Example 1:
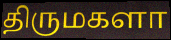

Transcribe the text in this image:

திருமகளா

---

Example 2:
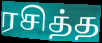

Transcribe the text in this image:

ரசித்த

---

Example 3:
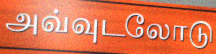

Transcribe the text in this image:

அவ்வுடலோடு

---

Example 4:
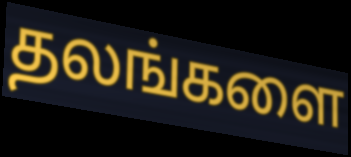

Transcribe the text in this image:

தலங்களை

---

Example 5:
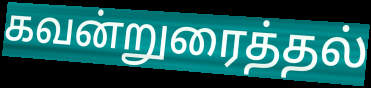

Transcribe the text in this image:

கவன்றுரைத்தல்